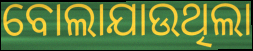
ବୋଲାଯାଉଥିଲା